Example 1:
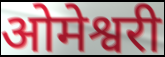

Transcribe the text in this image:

ओमेश्वरी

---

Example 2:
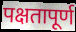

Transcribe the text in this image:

पक्षतापूर्ण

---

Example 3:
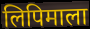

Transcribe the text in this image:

लिपिमाला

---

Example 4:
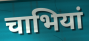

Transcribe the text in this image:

चाभियां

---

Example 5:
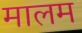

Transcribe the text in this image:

मालम